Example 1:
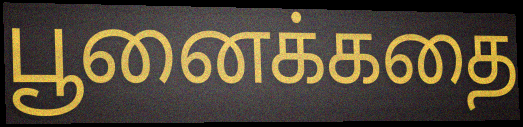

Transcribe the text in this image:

பூனைக்கதை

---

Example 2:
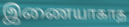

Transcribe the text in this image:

இணையாகாத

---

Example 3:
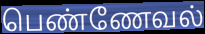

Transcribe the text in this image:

பெண்ணேவல்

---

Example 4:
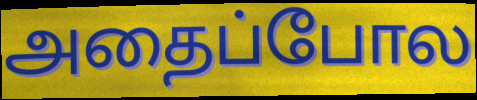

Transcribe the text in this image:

அதைப்போல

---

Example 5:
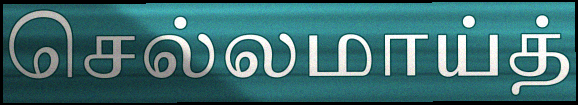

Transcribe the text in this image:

செல்லமாய்த்